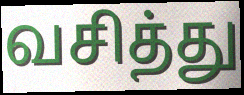
வசித்து